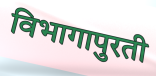
विभागापुरती